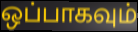
ஒப்பாகவும்